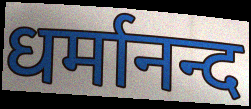
धर्मानन्द